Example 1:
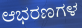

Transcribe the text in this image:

ಆಭರಣಗಳ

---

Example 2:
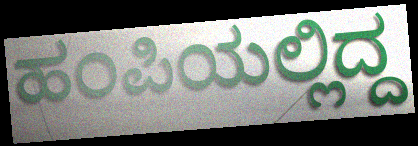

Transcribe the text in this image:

ಹಂಪಿಯಲ್ಲಿದ್ದ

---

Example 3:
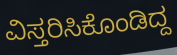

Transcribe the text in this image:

ವಿಸ್ತರಿಸಿಕೊಂಡಿದ್ದ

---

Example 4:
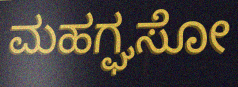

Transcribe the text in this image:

ಮಹಗ್ಘಸೋ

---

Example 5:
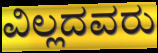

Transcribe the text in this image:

ವಿಲ್ಲದವರು